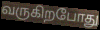
வருகிறபோது